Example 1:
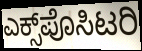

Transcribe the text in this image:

ಎಕ್ಸ್‌ಪೊಸಿಟರಿ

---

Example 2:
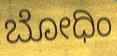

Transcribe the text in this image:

ಬೋಧಿಂ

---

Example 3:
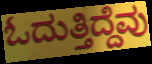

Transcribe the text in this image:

ಓದುತ್ತಿದ್ದೆವು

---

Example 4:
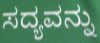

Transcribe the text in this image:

ಸದ್ಯವನ್ನು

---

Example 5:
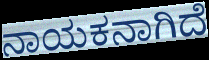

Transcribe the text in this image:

ನಾಯಕನಾಗಿದೆ